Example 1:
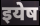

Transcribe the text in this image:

इयेष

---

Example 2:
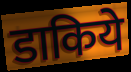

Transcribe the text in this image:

डाकिये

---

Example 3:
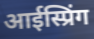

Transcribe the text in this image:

आईस्प्रिंग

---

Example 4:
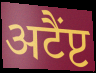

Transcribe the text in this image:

अटैंप्ट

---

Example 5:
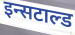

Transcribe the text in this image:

इन्सटाल्ड